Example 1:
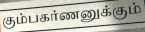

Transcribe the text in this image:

கும்பகர்ணனுக்கும்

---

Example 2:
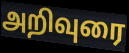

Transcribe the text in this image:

அறிவுரை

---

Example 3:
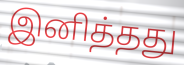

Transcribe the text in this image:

இனித்தது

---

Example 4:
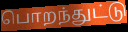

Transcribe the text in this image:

பொறந்துட்டு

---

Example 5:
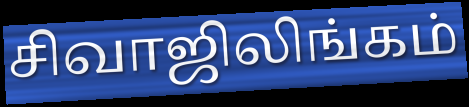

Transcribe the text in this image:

சிவாஜிலிங்கம்